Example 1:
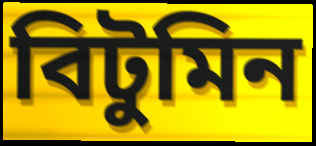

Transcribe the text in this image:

বিটুমিন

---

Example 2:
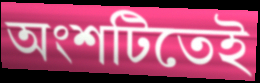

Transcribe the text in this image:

অংশটিতেই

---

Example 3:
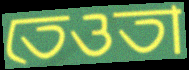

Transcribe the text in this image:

তেওতা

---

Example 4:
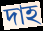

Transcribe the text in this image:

দাহ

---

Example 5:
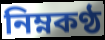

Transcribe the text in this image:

নিম্নকণ্ঠ